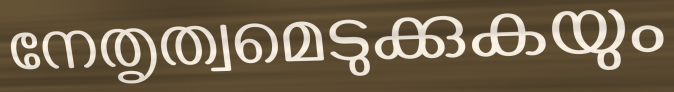
നേതൃത്വമെടുക്കുകയും